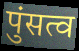
पुंसत्व